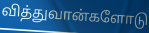
வித்துவான்களோடு